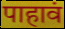
पाहावं